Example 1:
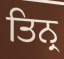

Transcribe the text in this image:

ਤਿਨ੍ਰ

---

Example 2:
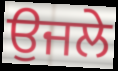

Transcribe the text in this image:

ਉਜਲੇ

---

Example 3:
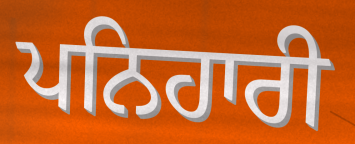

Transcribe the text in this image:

ਪਨਿਹਾਰੀ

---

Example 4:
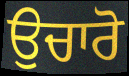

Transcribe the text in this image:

ਉਚਾਰੋ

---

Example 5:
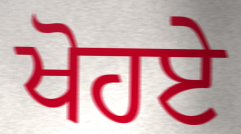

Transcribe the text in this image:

ਖੋਹਏ